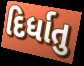
દિર્ધાતુ